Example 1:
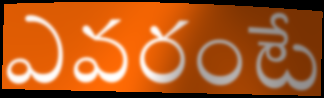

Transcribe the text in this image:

ఎవరంటే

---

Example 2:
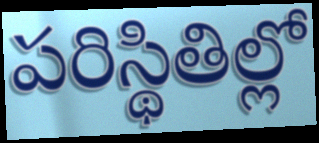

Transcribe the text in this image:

పరిస్థితిల్లో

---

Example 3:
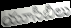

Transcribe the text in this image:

యూసీబీలు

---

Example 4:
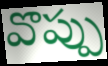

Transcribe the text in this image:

వొప్పు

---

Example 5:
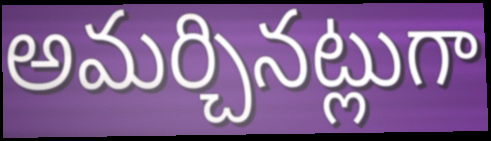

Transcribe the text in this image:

అమర్చినట్లుగా